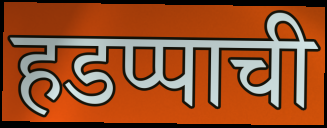
हडप्पाची